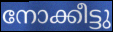
നോക്കീട്ടു